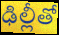
ఢిల్లీతో